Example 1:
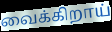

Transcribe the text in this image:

வைக்கிறாய்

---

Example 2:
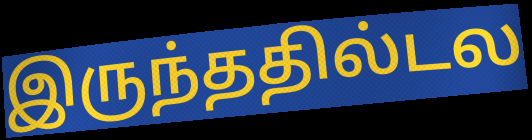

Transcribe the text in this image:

இருந்ததில்டல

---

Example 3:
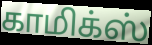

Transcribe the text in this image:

காமிக்ஸ்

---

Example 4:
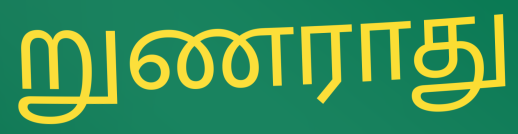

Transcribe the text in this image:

றுணராது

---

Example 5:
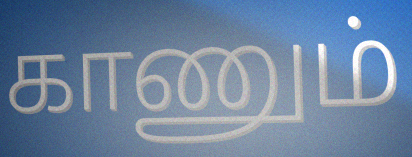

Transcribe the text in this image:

காணும்